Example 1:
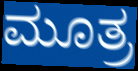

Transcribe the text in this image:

ಮೂತ್ರ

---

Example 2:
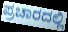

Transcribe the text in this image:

ಪ್ರಚಾರದಲ್ಲಿ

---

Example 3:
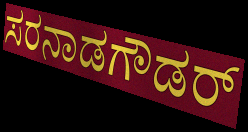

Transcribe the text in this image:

ಸರನಾಡಗೌಡರ್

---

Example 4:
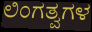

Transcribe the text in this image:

ಲಿಂಗತ್ವಗಳ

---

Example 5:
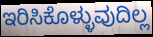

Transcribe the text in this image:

ಇರಿಸಿಕೊಳ್ಳುವುದಿಲ್ಲ